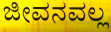
ಜೀವನವಲ್ಲ